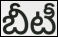
బీటీ